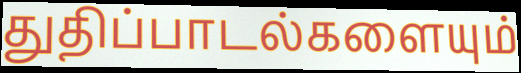
துதிப்பாடல்களையும்